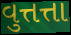
વુત્તત્તા